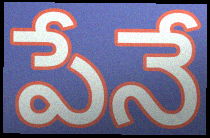
పేనే